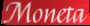
Moneta